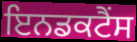
ਇਨਡਕਟੈਂਸ